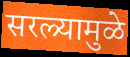
सरल्यामुळे